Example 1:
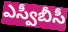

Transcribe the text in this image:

ఎస్వీబీసీ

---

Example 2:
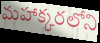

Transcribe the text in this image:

మహాక్కరలోని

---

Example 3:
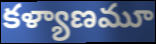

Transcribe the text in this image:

కళ్యాణమూ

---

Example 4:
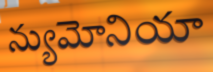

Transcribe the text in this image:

న్యుమోనియా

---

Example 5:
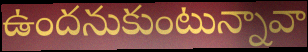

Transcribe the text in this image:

ఉందనుకుంటున్నావా